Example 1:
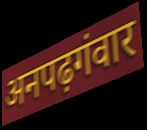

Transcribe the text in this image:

अनपढ़गंवार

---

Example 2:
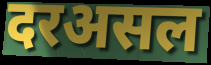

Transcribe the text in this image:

दरअसल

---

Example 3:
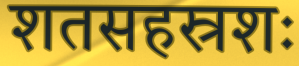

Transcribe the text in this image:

शतसहस्रशः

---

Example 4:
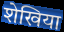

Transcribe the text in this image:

शेखिया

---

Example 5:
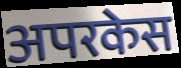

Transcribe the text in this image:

अपरकेस